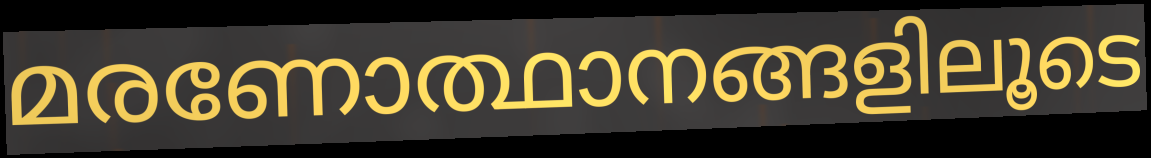
മരണോത്ഥാനങ്ങളിലൂടെ